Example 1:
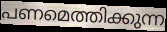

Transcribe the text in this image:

പണമെത്തിക്കുന്ന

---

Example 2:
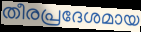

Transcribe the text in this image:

തീരപ്രദേശമായ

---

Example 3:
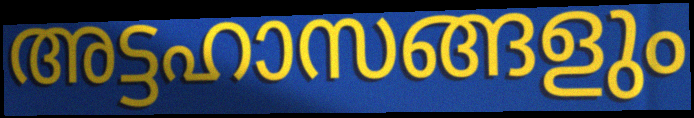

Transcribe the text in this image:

അട്ടഹാസങ്ങളും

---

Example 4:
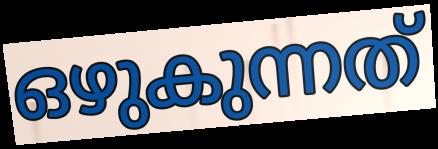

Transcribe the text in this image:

ഒഴുകുന്നത്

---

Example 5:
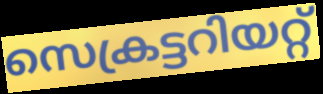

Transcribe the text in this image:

സെക്രട്ടറിയറ്റ്